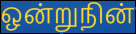
ஒன்றுநின்